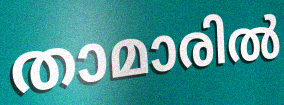
താമാരിൽ